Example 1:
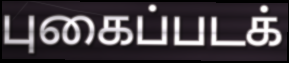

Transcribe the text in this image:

புகைப்படக்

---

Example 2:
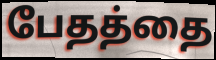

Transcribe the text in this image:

பேதத்தை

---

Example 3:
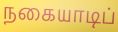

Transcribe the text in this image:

நகையாடிப்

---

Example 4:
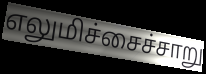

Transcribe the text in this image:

எலுமிச்சைச்சாறு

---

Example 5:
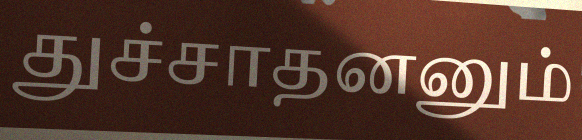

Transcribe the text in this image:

துச்சாதனனும்